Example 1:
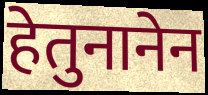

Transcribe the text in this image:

हेतुनानेन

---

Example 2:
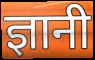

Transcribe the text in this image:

ज्ञानी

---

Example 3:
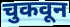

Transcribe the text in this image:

चुकवून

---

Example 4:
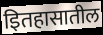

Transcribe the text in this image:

इितहासातील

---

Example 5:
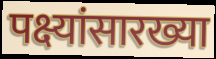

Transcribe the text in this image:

पक्ष्यांसारख्या